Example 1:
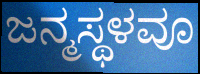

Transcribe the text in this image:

ಜನ್ಮಸ್ಥಳವೂ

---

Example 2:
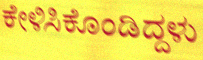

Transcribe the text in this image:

ಕೇಳಿಸಿಕೊಂಡಿದ್ದಳು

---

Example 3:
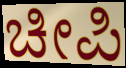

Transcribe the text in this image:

ಚೀಪಿ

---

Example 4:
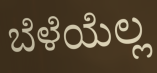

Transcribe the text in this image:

ಬೆಳೆಯೆಲ್ಲ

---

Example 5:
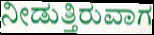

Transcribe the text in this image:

ನೀಡುತ್ತಿರುವಾಗ